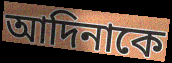
আদিনাকে